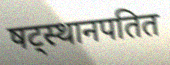
षट्स्थानपतित